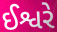
ઈશ્વરે